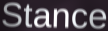
Stance